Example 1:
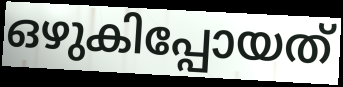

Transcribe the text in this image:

ഒഴുകിപ്പോയത്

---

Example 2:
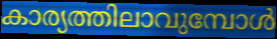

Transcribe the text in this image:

കാര്യത്തിലാവുമ്പോൾ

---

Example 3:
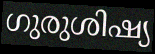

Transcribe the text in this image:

ഗുരുശിഷ്യ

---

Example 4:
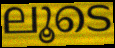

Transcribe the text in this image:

ലൂടെ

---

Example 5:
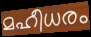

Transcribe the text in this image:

മഹീധരം